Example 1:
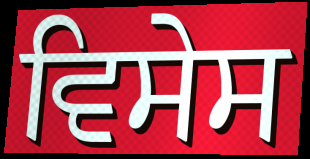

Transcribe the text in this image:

ਵਿਸੇਸ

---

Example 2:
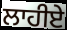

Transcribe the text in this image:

ਲਾਹੀਏ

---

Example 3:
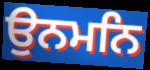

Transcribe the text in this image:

ਉਨਮਨਿ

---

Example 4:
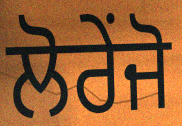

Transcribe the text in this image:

ਲੋਰੇਂਜੋ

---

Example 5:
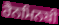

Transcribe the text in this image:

ਰੈਨਮਿਨਬੀ